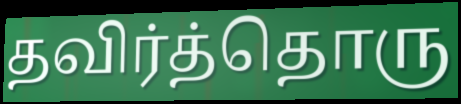
தவிர்த்தொரு